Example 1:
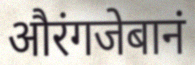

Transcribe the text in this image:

औरंगजेबानं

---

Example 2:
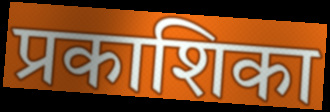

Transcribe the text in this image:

प्रकाशिका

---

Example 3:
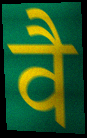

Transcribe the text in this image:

वै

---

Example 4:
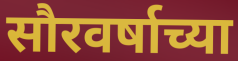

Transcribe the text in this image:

सौरवर्षाच्या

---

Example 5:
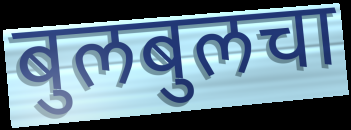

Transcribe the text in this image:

बुलबुलचा